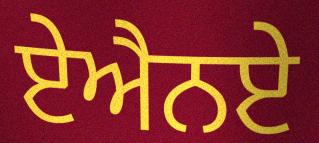
ਏਐਨਏ